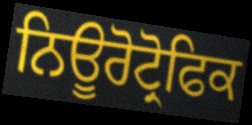
ਨਿਊਰੋਟ੍ਰੋਫਿਕ